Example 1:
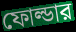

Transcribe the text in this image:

ফোল্ডার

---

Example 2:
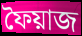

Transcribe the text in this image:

ফৈয়াজ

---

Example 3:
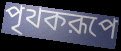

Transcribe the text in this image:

পৃথকরূপে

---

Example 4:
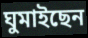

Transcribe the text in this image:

ঘুমাইছেন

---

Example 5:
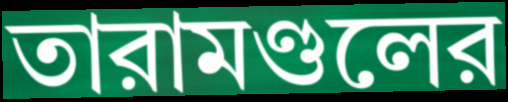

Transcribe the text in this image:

তারামণ্ডলের